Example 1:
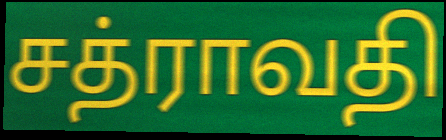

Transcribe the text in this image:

சத்ராவதி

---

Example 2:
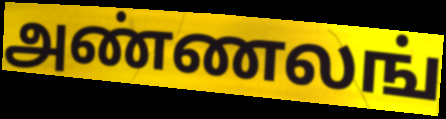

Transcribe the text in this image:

அண்ணலங்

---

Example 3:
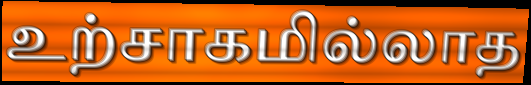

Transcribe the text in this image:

உற்சாகமில்லாத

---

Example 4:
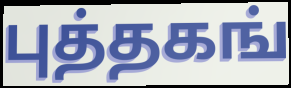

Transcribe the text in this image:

புத்தகங்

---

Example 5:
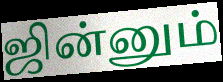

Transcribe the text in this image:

ஜின்னும்